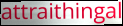
attraithingal